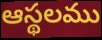
ఆస్థలము